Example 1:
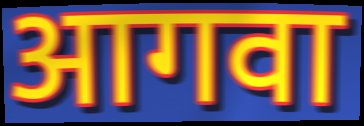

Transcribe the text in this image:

आगवा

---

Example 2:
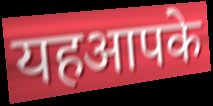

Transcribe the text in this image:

यहआपके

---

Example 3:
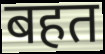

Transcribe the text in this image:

बहत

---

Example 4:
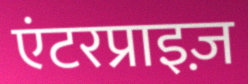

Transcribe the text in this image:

एंटरप्राइज़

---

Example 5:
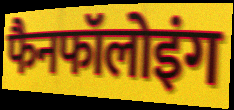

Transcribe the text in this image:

फैनफॉलोइंग